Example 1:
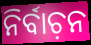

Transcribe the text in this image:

ନିର୍ବାଚ଼ନ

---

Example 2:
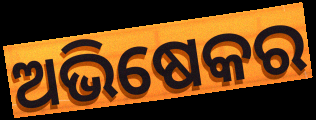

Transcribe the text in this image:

ଅଭିଷେକର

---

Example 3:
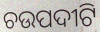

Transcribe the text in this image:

ଚଉପଦୀଟି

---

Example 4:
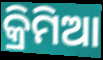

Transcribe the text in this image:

କ୍ରିମିଆ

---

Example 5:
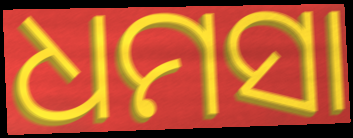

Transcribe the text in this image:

ଧମସା